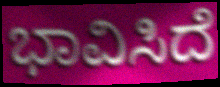
ಭಾವಿಸಿದೆ